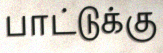
பாட்டுக்கு